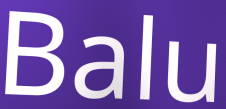
Balu